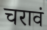
चरावं